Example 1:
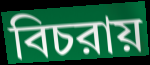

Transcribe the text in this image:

বিচরায়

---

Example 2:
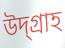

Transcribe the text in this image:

উদ্গ্রাহ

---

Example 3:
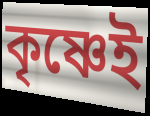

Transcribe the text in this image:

কৃষ্ণেই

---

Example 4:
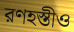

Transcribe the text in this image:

রণহস্তীও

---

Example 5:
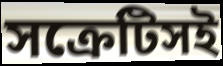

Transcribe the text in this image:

সক্রেটিসই